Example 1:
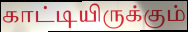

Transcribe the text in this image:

காட்டியிருக்கும்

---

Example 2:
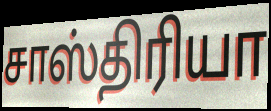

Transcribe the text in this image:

சாஸ்திரியா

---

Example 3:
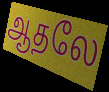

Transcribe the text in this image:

ஆதலே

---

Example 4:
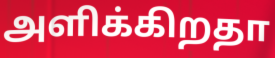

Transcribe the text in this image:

அளிக்கிறதா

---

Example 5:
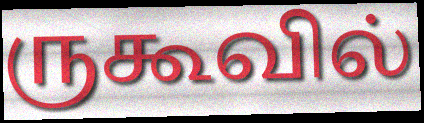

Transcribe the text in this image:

ருகூவில்